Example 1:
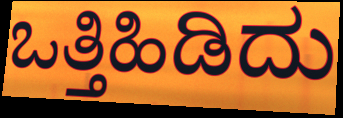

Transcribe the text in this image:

ಒತ್ತಿಹಿಡಿದು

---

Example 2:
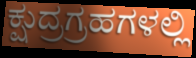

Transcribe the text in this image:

ಕ್ಷುದ್ರಗ್ರಹಗಳಲ್ಲಿ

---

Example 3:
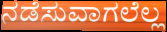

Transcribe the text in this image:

ನಡೆಸುವಾಗಲೆಲ್ಲ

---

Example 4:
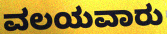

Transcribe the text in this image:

ವಲಯವಾರು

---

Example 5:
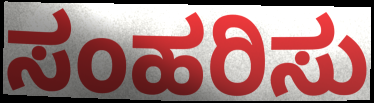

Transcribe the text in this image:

ಸಂಹರಿಸು